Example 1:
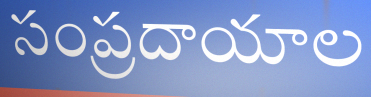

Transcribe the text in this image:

సంప్రదాయాల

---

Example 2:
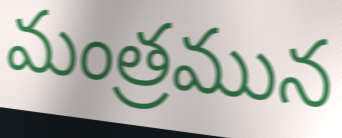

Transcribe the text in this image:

మంత్రమున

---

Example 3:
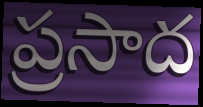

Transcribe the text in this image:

ప్రసాద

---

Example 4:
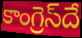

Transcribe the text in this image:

కాంగ్రెస్‌దే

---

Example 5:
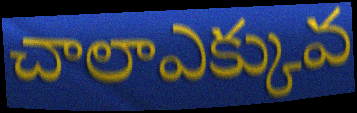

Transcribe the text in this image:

చాలాఎక్కువ